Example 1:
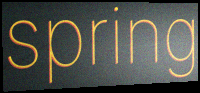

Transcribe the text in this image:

spring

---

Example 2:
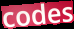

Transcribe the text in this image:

codes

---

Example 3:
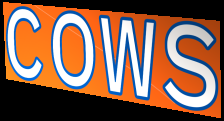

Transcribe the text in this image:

cows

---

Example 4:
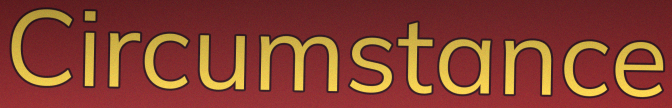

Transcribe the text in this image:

Circumstance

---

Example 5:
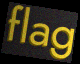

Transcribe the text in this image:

flag